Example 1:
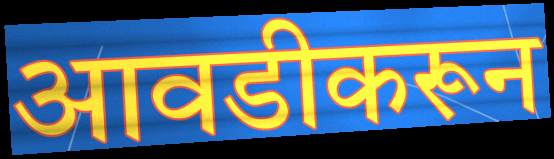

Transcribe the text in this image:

आवडीकरून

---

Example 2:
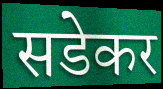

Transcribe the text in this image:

सडेकर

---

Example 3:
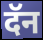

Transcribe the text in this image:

दॅन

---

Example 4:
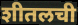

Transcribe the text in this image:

शीतलची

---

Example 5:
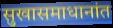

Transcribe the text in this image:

सुखासमाधानांत